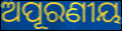
ଅପୂରଣୀୟ